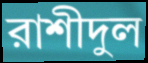
রাশীদুল